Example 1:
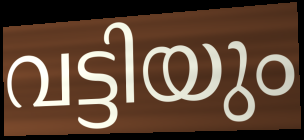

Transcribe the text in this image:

വട്ടിയും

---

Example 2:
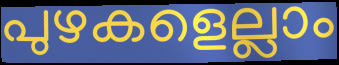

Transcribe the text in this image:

പുഴകളെല്ലാം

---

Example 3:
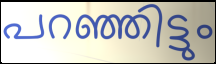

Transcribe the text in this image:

പറഞ്ഞിട്ടും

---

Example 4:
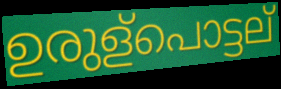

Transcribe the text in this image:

ഉരുള്പൊട്ടല്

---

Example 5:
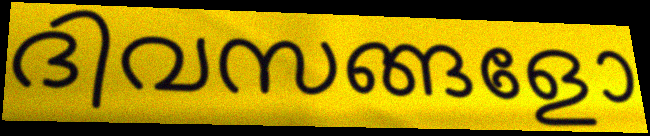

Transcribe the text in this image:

ദിവസങ്ങളോ